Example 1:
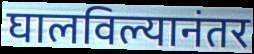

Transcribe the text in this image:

घालविल्यानंतर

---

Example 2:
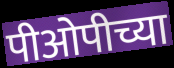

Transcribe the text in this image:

पीओपीच्या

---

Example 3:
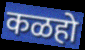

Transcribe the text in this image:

कळहो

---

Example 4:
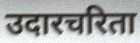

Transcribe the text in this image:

उदारचरिता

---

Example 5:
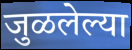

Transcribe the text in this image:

जुळलेल्या